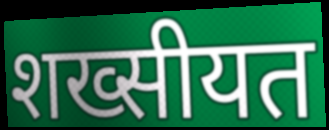
शख्सीयत